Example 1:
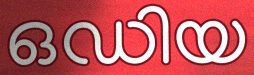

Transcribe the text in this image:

ഒഡിയ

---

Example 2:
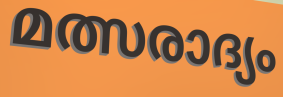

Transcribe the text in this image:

മത്സരാദ്യം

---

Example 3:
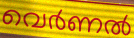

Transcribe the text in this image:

വെർണൽ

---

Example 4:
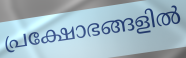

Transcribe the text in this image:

പ്രക്ഷോഭങ്ങളിൽ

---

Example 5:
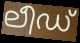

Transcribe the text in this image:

ലീഡ്